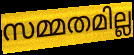
സമ്മതമില്ല